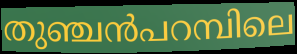
തുഞ്ചൻപറമ്പിലെ